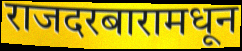
राजदरबारामधून